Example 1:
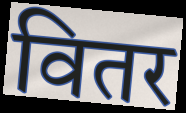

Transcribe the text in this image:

वितर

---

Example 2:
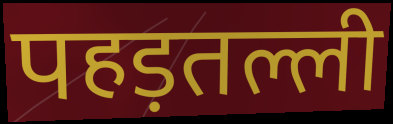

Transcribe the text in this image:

पहड़तल्ली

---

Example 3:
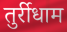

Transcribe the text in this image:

तुर्रीधाम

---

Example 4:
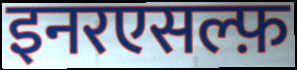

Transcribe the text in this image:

इनरएसल्फ़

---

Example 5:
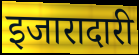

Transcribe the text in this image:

इजारादारी